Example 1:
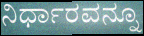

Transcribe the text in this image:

ನಿರ್ಧಾರವನ್ನೂ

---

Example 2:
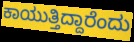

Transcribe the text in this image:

ಕಾಯುತ್ತಿದ್ದಾರೆಂದು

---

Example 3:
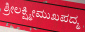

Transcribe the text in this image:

ಶ್ರೀಲಕ್ಷ್ಮೀಮುಖಪದ್ಮ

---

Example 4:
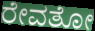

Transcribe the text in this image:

ರೇವತೋ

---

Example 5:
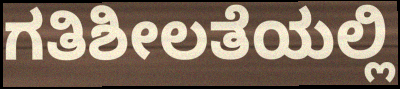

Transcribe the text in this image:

ಗತಿಶೀಲತೆಯಲ್ಲಿ